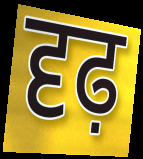
दृढ़